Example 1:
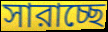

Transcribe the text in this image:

সারাচ্ছে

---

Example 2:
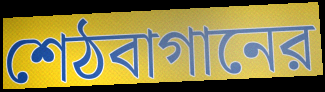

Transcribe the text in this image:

শেঠবাগানের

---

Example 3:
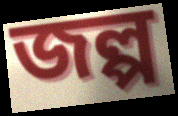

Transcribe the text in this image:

জল্প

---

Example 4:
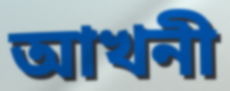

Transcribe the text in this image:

আখনী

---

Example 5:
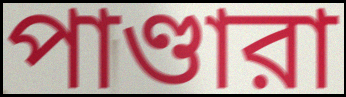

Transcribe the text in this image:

পাণ্ডারা